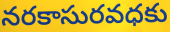
నరకాసురవధకు